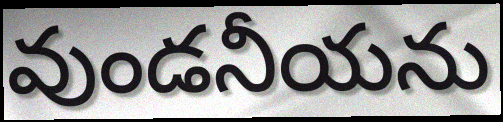
వుండనీయను